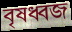
বৃষধ্বজ